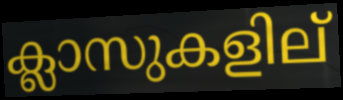
ക്ലാസുകളില്